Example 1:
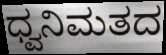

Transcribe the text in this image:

ಧ್ವನಿಮತದ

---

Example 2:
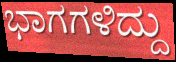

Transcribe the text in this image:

ಭಾಗಗಳಿದ್ದು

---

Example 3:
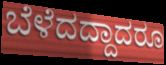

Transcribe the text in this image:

ಬೆಳೆದದ್ದಾದರೂ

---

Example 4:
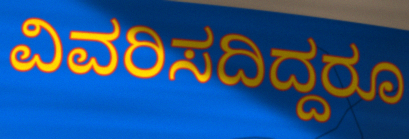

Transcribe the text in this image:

ವಿವರಿಸದಿದ್ದರೂ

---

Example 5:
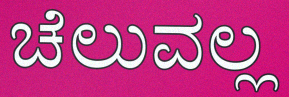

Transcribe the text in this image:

ಚೆಲುವಲ್ಲ